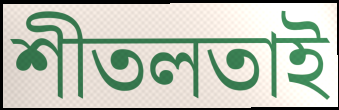
শীতলতাই